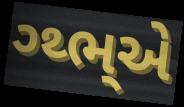
ગ્થ્ભ્એ